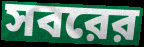
সবরের